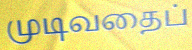
முடிவதைப்